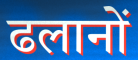
ढलानों